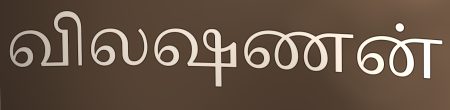
விலஷணன்